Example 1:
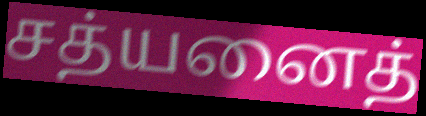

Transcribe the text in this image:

சத்யனைத்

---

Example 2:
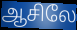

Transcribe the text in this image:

ஆசிலே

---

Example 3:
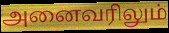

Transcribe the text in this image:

அனைவரிலும்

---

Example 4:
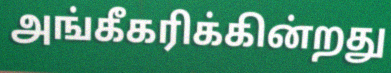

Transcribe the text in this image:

அங்கீகரிக்கின்றது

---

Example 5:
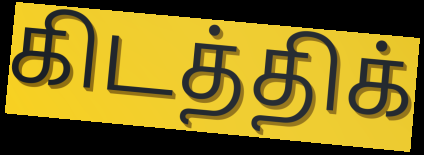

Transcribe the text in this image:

கிடத்திக்